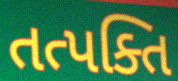
તત્પક્તિ